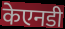
केएनडी